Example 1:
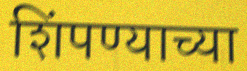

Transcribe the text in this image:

शिंपण्याच्या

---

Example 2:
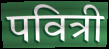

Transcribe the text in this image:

पवित्री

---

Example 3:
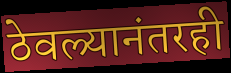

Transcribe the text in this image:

ठेवल्यानंतरही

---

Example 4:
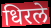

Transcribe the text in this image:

धिरले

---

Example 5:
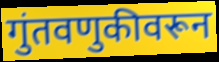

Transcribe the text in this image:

गुंतवणुकीवरून